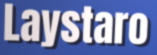
Laystaro